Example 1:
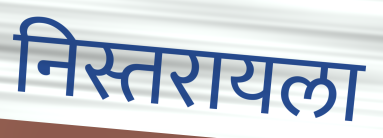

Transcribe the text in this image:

निस्तरायला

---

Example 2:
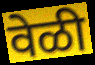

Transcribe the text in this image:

वेळी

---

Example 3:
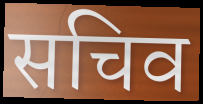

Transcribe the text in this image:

सचिव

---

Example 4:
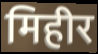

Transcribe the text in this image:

मिहीर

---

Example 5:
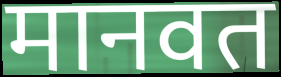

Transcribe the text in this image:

मानवत